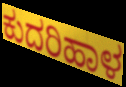
ಕುದರಿಹಾಳ